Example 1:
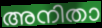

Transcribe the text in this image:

അനിതാ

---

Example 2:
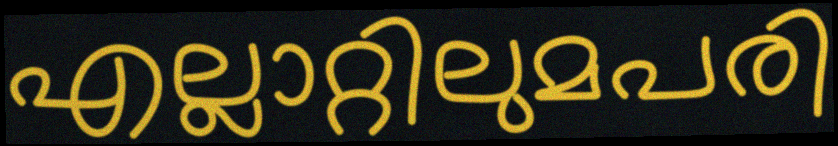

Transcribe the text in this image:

എല്ലാറ്റിലുമപരി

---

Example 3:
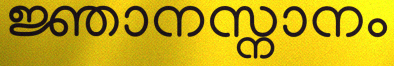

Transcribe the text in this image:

ജ്ഞാനസ്നാനം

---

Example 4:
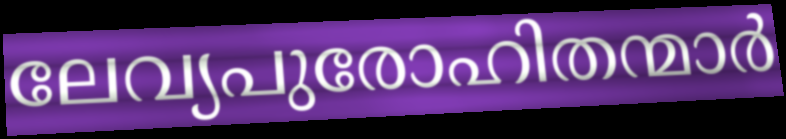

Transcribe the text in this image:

ലേവ്യപുരോഹിതന്മാർ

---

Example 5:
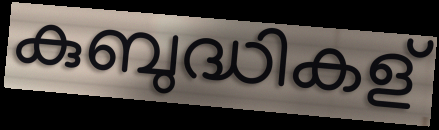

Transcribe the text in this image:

കുബുദ്ധികള്